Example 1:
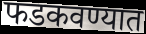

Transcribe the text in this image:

फडकवण्यात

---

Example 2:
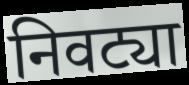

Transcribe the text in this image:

निवट्या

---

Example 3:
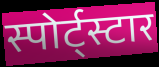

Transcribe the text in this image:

स्पोर्ट्स्टार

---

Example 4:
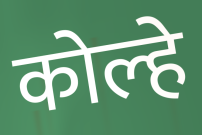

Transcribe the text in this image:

कोल्हे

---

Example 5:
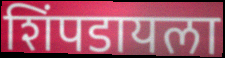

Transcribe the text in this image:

शिंपडायला